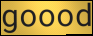
goood